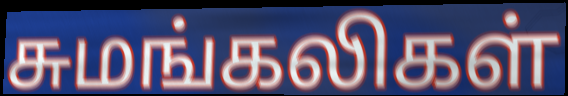
சுமங்கலிகள்